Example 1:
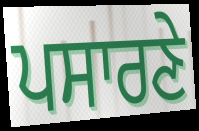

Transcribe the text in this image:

ਪਸਾਰਣੇ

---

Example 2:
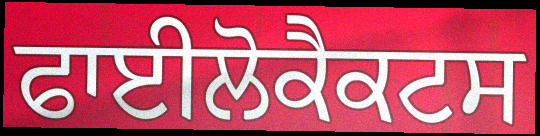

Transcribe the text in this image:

ਫਾਈਲੋਕੈਕਟਸ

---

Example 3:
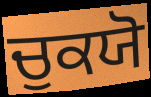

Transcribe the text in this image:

ਚੁਕਯੋ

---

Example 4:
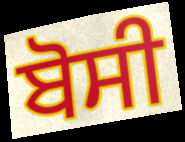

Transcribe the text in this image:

ਬੋਸੀ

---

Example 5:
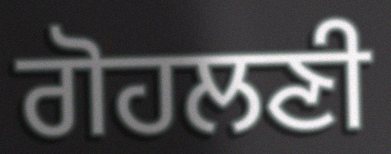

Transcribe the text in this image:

ਗੋਹਲਣੀ